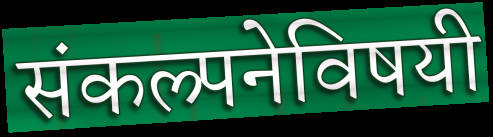
संकल्पनेविषयी